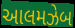
આલમઝેબ